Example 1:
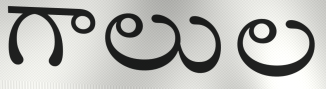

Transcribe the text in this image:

గాలుల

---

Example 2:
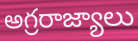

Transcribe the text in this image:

అగ్రరాజ్యాలు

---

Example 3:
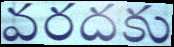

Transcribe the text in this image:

వరదకు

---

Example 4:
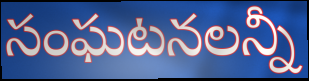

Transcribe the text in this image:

సంఘటనలన్నీ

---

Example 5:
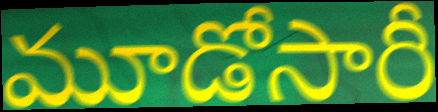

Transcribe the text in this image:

మూడోసారీ